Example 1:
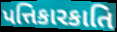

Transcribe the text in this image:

પત્તિકારકાતિ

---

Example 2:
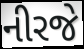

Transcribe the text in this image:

નીરજે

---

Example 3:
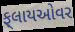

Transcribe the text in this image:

ફ્‌લાયઓવર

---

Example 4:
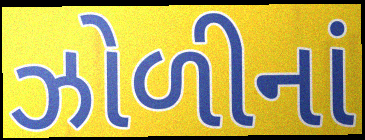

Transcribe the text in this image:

ઝોળીનાં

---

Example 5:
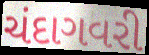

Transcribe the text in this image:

ચંદાગવરી